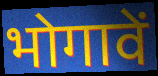
भोगावें